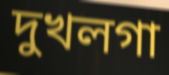
দুখলগা